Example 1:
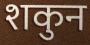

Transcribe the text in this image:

शकुन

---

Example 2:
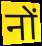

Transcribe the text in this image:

नों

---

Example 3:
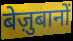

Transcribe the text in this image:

बेज़ुबानों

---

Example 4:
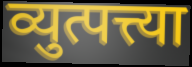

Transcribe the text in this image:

व्युत्पत्त्या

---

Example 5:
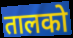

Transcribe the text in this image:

तालको